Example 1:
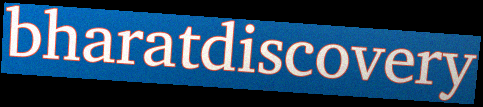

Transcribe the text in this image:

bharatdiscovery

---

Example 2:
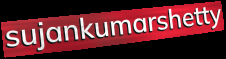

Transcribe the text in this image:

sujankumarshetty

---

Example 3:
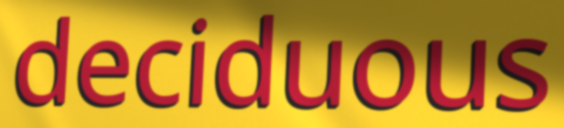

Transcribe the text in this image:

deciduous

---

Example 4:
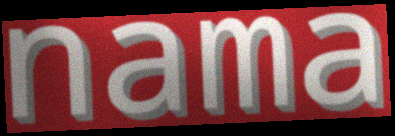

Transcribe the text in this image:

nama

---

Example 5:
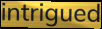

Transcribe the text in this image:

intrigued